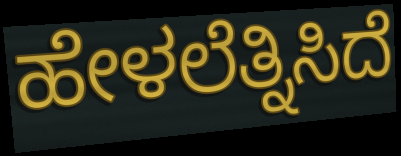
ಹೇಳಲೆತ್ನಿಸಿದೆ